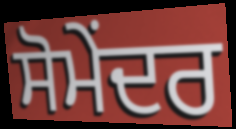
ਸੋਮੇਂਦਰ